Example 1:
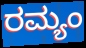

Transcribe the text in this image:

ರಮ್ಯಂ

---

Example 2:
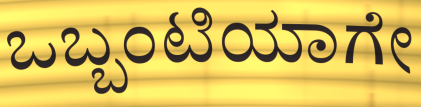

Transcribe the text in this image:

ಒಬ್ಬಂಟಿಯಾಗೇ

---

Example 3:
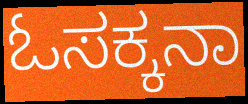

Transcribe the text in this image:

ಓಸಕ್ಕನಾ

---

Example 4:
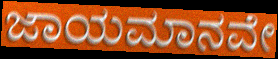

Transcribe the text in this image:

ಜಾಯಮಾನವೇ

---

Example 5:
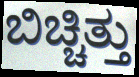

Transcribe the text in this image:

ಬಿಚ್ಚಿತ್ತು